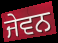
ਜੇਵਨ